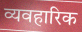
व्यवहारिक